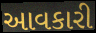
આવકારી